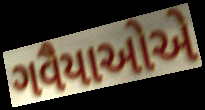
ગવૈયાઓએ